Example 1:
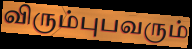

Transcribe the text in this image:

விரும்புபவரும்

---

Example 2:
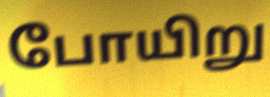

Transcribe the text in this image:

போயிறு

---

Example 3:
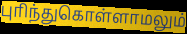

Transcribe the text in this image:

புரிந்துகொள்ளாமலும்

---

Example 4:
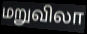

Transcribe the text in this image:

மறுவிலா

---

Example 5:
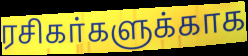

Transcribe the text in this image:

ரசிகர்களுக்காக